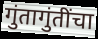
गुंतागुंतींचा